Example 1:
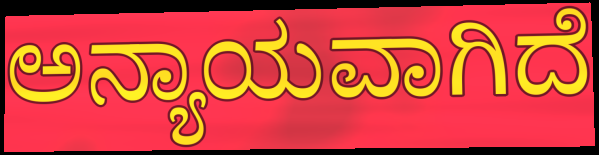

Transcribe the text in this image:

ಅನ್ಯಾಯವಾಗಿದೆ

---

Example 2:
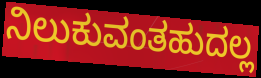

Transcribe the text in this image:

ನಿಲುಕುವಂತಹುದಲ್ಲ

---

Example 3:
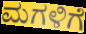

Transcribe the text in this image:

ಮಗಳಿಗೆ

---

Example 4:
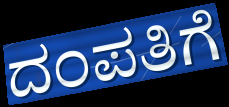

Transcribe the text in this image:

ದಂಪತಿಗೆ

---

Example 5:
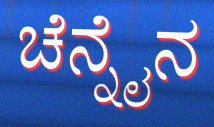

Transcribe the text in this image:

ಚೆನ್ನೈನ